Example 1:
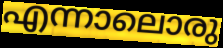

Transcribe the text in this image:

എന്നാലൊരു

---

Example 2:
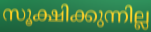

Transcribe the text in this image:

സൂക്ഷിക്കുന്നില്ല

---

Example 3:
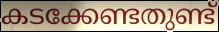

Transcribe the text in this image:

കടക്കേണ്ടതുണ്ട്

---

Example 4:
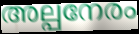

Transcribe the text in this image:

അല്പനേരം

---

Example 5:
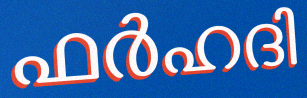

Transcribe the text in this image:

ഫർഹദി